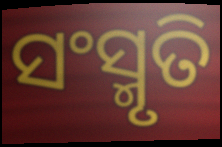
ସଂସ୍ମୃତି